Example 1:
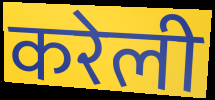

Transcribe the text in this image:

करेली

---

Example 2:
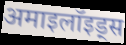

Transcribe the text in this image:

अमाइलॉइड्स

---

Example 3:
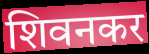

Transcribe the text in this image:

शिवनकर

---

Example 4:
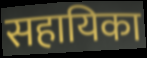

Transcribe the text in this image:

सहायिका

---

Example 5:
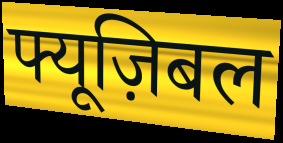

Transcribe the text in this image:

फ्यूज़िबल